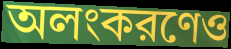
অলংকরণেও